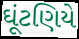
ઘૂંટણિયે